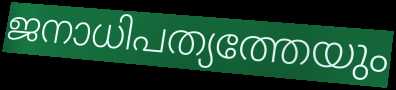
ജനാധിപത്യത്തേയും